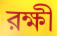
রক্ষী